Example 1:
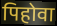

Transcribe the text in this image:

पिहोवा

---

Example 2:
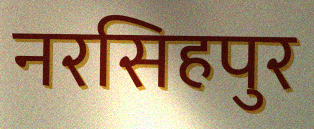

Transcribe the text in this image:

नरसिहपुर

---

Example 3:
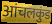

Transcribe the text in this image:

आंचलकुंड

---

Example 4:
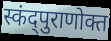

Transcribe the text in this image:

स्कंद्पुराणोक्त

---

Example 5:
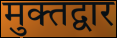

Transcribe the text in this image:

मुक्तद्वार